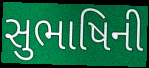
સુભાષિની